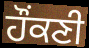
ਹੌਂਕਣੀ